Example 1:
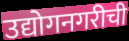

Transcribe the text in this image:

उद्योगनगरीची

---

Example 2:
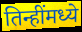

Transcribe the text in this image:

तिन्हींमध्ये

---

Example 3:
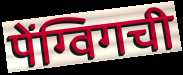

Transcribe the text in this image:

पेंग्विगची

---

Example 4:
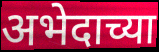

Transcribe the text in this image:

अभेदाच्या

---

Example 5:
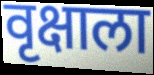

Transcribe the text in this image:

वृक्षाला